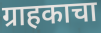
ग्राहकाचा